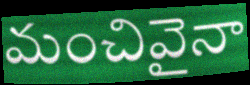
మంచివైనా